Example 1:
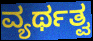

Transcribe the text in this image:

ವ್ಯರ್ಥತ್ವ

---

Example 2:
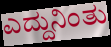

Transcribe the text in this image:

ಎದ್ದುನಿಂತು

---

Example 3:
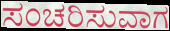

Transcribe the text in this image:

ಸಂಚರಿಸುವಾಗ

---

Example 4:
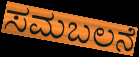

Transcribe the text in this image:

ಸಮಬಲನೆ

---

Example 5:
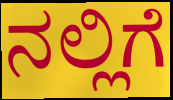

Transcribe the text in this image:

ನಲ್ಲಿಗೆ